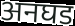
अनघड